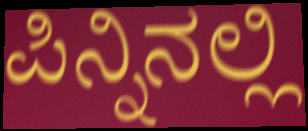
ಪಿನ್ನಿನಲ್ಲಿ